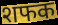
शफक